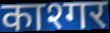
काश्गर